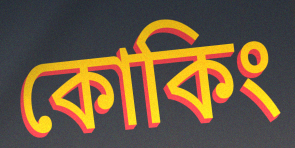
কোকিং